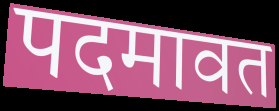
पदमावत